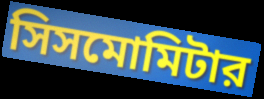
সিসমোমিটার